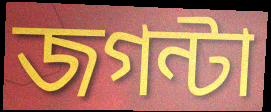
জগন্টা